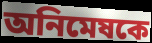
অনিমেষকে